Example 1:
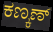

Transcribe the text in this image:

ಕಣ್ಕಣ್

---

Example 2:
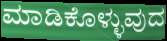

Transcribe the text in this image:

ಮಾಡಿಕೊಳ್ಳುವುದ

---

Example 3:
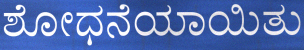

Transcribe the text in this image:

ಶೋಧನೆಯಾಯಿತು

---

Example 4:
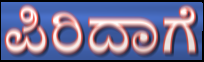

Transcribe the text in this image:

ಪಿರಿದಾಗೆ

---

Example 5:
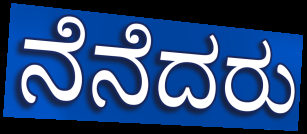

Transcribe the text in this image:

ನೆನೆದರು